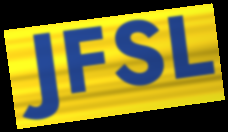
JFSL